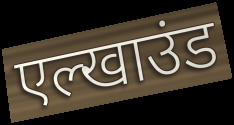
एल्खाउंड